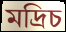
মদ্রিচ